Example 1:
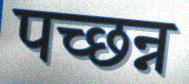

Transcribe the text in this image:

पच्छन्न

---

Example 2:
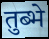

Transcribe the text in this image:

तुब्भे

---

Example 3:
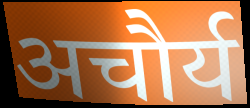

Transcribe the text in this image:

अचौर्य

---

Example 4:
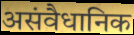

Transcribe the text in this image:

असंवैधानिक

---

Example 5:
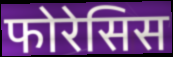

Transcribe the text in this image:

फोरेसिस